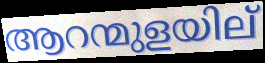
ആറന്മുളയില്